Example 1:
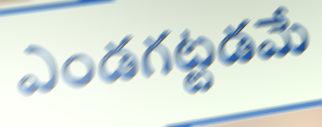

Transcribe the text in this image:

ఎండగట్టడమే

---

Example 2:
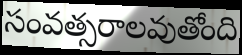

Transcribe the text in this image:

సంవత్సరాలవుతోంది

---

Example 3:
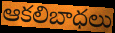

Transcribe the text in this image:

ఆకలిబాధలు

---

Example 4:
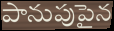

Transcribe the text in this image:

పానుపుపైన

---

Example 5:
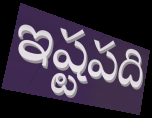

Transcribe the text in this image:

ఇష్టపది